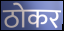
ठोकर